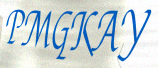
PMGKAY